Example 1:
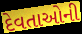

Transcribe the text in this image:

દેવતાઓની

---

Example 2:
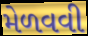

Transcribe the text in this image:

મેળવવી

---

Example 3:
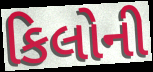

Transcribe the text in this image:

કિલોની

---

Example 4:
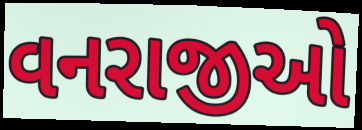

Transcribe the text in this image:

વનરાજીઓ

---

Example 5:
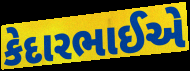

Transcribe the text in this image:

કેદારભાઈએ